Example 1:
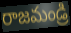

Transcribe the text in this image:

రాజమండ్రి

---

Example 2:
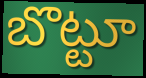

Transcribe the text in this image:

బొట్టూ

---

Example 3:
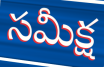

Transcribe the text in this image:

సమీక్ష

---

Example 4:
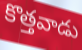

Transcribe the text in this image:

కొత్తవాడు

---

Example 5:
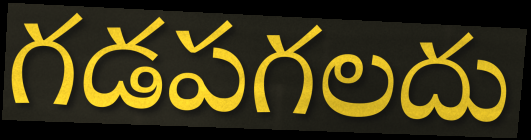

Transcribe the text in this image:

గడపగలదు